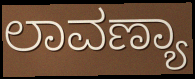
ಲಾವಣ್ಯಾ